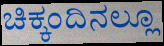
ಚಿಕ್ಕಂದಿನಲ್ಲೂ